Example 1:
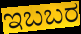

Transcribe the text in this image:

ಇಬಬರ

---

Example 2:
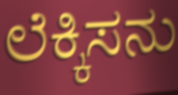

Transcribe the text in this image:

ಲೆಕ್ಕಿಸನು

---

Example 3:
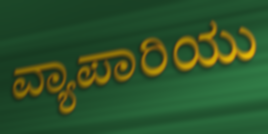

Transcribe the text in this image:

ವ್ಯಾಪಾರಿಯು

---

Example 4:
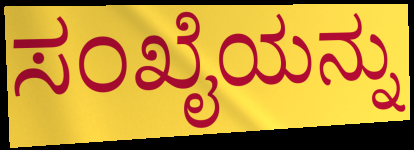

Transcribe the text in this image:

ಸಂಖೈಯನ್ನು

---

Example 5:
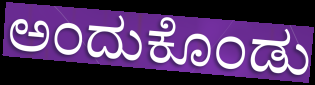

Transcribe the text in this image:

ಅಂದುಕೊಂಡು